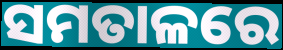
ସମତାଳରେ